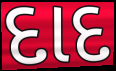
દાદ